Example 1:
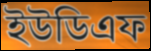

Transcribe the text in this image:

ইউডিএফ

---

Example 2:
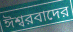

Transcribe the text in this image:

ঈশ্বরবাদের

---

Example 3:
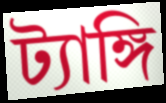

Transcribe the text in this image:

ট্যাঙ্গি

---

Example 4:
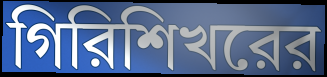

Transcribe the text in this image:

গিরিশিখরের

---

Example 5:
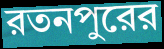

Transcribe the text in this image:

রতনপুরের